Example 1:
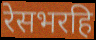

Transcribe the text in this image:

रेसभरहि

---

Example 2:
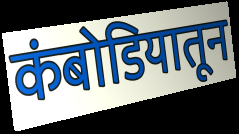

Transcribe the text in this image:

कंबोडियातून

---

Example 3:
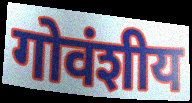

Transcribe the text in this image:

गोवंशीय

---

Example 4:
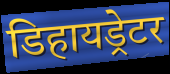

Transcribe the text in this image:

डिहायड्रेटर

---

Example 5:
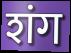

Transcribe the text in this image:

शंग